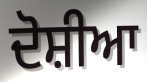
ਦੋਸ਼ੀਆ